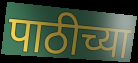
पाठीच्या